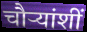
चौर्‍यांशीं